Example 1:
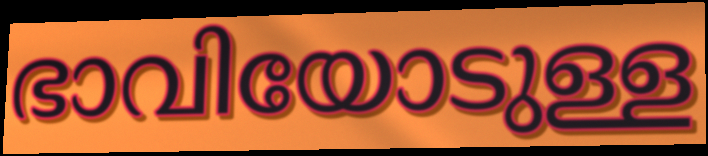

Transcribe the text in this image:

ഭാവിയോടുള്ള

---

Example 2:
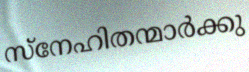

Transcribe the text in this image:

സ്നേഹിതന്മാർക്കു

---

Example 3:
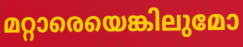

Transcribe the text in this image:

മറ്റാരെയെങ്കിലുമോ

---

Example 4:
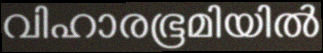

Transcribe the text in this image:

വിഹാരഭൂമിയിൽ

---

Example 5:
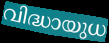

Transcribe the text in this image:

വിദ്ധായുധ